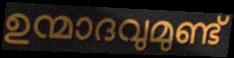
ഉന്മാദവുമുണ്ട്